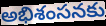
అభిశంసనకు